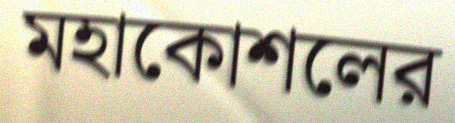
মহাকোশলের